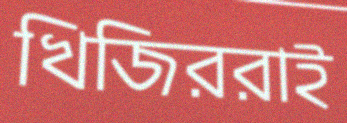
খিজিররাই